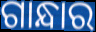
ଗାନ୍ଧାର